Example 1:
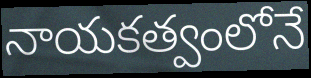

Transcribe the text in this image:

నాయకత్వంలోనే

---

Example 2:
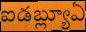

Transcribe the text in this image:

ఐడబ్ల్యూఏ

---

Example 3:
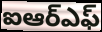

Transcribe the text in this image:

ఐఆర్ఎఫ్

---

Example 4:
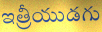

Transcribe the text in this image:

ఇత్రీయుడగు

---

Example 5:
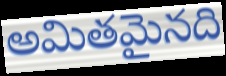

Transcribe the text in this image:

అమితమైనది